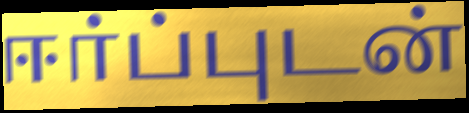
ஈர்ப்புடன்